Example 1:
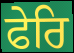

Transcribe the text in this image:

ਫੇਰਿ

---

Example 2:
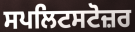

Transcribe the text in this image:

ਸਪਲਿਟਸਟੋਜ਼ਰ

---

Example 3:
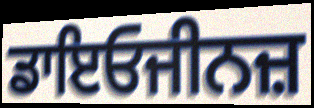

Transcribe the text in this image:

ਡਾਇਓਜੀਨਜ਼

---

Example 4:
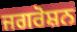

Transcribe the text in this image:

ਜਗਰੋਸ਼ਨ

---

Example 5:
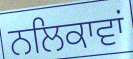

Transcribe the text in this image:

ਨਲਿਕਾਵਾਂ